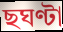
ছঘণ্টা